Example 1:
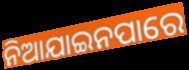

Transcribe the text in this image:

ନିଆଯାଇନପାରେ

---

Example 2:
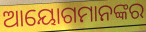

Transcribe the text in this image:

ଆୟୋଗମାନଙ୍କର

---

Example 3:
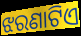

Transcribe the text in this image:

ଝରଣାଟିଏ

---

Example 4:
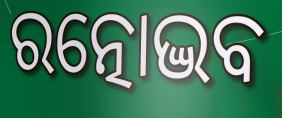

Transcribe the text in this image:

ରତ୍ନୋଦ୍ଭବ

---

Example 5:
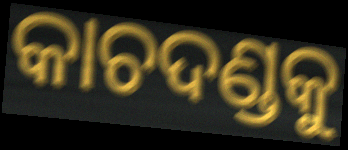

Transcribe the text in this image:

କାଚଦଣ୍ଡକୁ